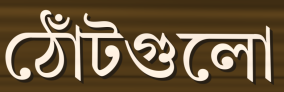
ঠোঁটগুলো